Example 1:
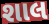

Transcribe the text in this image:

શાલ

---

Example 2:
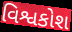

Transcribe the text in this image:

વિશ્વકોશ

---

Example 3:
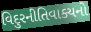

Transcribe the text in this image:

વિદુરનીતિવાક્યનો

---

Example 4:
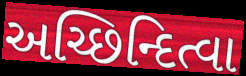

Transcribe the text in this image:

અચ્છિન્દિત્વા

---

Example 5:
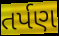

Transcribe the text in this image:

તર્પણ